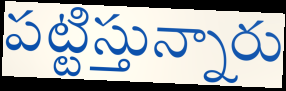
పట్టిస్తున్నారు